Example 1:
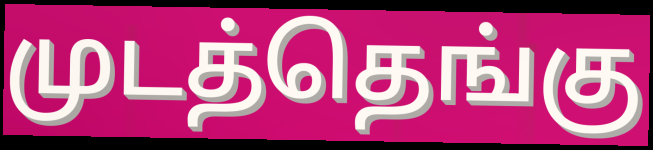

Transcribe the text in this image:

முடத்தெங்கு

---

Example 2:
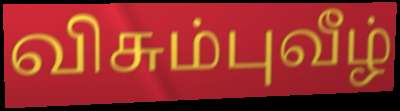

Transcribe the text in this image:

விசும்புவீழ்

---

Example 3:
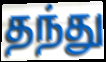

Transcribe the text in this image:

தந்து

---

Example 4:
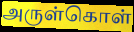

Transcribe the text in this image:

அருள்கொள்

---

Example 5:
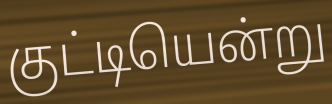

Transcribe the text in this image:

குட்டியென்று